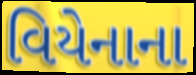
વિયેનાના